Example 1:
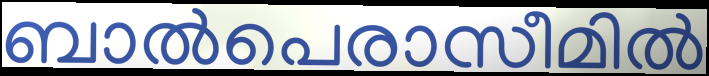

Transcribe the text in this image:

ബാൽപെരാസീമിൽ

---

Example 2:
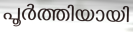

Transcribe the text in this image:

പൂർത്തിയായി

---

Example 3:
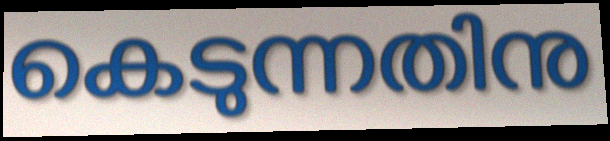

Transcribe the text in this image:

കെടുന്നതിനു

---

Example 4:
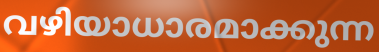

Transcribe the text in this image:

വഴിയാധാരമാക്കുന്ന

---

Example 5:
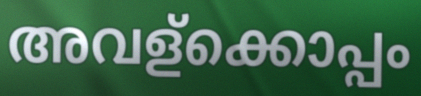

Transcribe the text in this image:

അവള്ക്കൊപ്പം